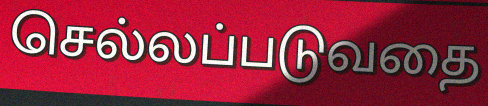
செல்லப்படுவதை